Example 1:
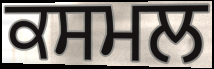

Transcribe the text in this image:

ਕਸਮਲ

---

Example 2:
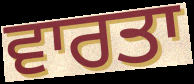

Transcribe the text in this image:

ਵਾਰਤਾ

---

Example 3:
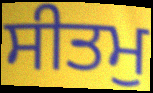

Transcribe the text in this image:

ਸੀਤਮੁ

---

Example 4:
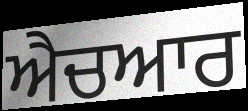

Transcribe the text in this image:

ਐਚਆਰ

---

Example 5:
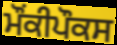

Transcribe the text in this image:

ਮੌਂਕੀਪੌਕਸ